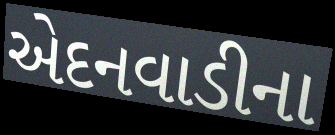
એદનવાડીના